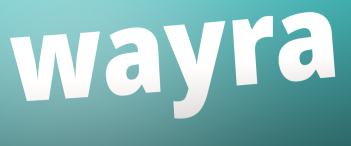
wayra